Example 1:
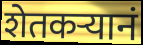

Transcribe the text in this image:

शेतकर्‍यानं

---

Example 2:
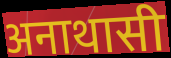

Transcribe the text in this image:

अनाथासी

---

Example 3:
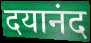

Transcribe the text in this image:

दयानंद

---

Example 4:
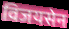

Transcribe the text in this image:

विजयसेन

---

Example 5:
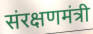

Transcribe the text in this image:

संरक्षणमंत्री